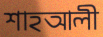
শাহআলী